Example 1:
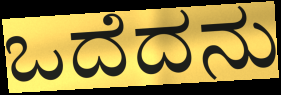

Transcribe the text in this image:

ಒದೆದನು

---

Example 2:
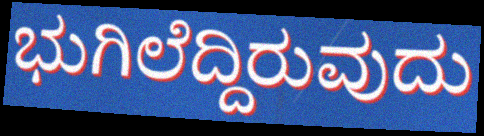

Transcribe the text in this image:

ಭುಗಿಲೆದ್ದಿರುವುದು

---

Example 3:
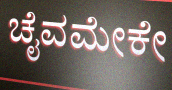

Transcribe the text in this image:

ಚೈವಮೇಕೇ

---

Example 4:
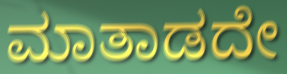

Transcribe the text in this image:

ಮಾತಾಡದೇ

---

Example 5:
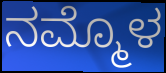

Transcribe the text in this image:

ನಮ್ಮೊಳ